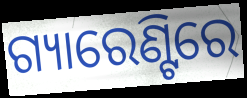
ଗ୍ୟାରେଣ୍ଟିରେ